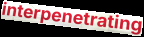
interpenetrating